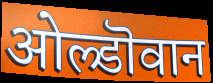
ओल्डॊवान